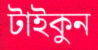
টাইকুন